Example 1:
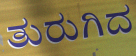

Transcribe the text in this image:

ತುರುಗಿದ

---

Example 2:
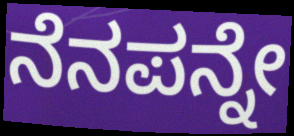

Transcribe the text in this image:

ನೆನಪನ್ನೇ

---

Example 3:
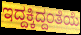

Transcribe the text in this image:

ಇದ್ದಕ್ಕಿದ್ದಂತೆಯೆ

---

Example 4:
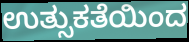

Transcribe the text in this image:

ಉತ್ಸುಕತೆಯಿಂದ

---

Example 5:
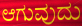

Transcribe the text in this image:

ಆಗುವುದು